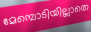
മേമ്പൊടിയില്ലാതെ